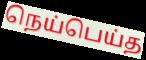
நெய்பெய்த